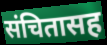
संचितासह